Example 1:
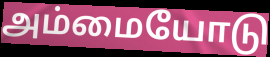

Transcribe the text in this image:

அம்மையோடு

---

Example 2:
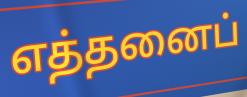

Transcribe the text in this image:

எத்தனைப்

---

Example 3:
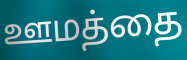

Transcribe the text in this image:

ஊமத்தை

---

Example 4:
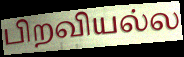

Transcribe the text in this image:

பிறவியல்ல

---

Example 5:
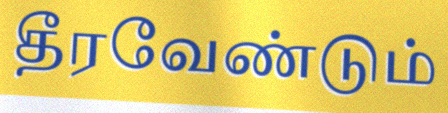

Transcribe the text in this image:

தீரவேண்டும்